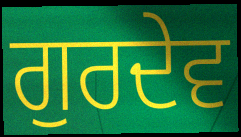
ਗੁਰਦੇਵ